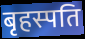
बृहस्पति